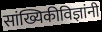
सांख्यिकीविज्ञांनी